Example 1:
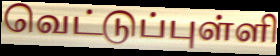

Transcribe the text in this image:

வெட்டுப்புள்ளி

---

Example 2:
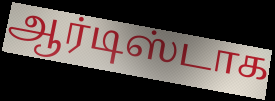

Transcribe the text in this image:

ஆர்டிஸ்டாக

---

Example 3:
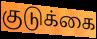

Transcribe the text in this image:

குடுக்கை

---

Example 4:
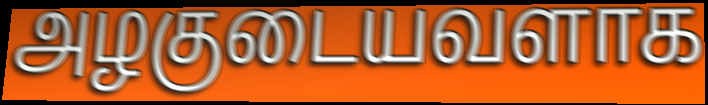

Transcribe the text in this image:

அழகுடையவளாக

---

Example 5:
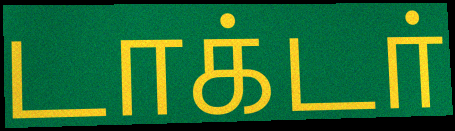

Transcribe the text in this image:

டாக்டர்